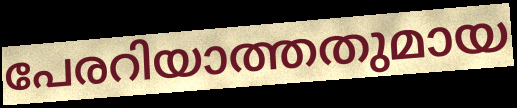
പേരറിയാത്തതുമായ